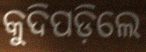
କୁଦିପଡ଼ିଲେ